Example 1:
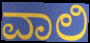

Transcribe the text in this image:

ವಾಲಿ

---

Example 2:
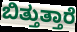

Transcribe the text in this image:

ಬಿತ್ತುತ್ತಾರೆ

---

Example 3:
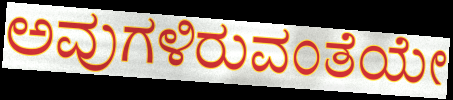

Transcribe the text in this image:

ಅವುಗಳಿರುವಂತೆಯೇ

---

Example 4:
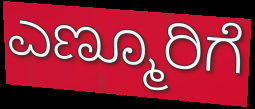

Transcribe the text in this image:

ಎಣ್ಮೂರಿಗೆ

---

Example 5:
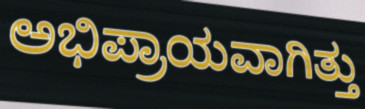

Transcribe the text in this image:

ಅಭಿಪ್ರಾಯವಾಗಿತ್ತು